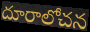
దూరాలోచన